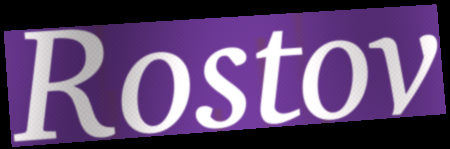
Rostov